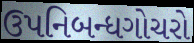
ઉપનિબન્ધગોચરો